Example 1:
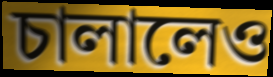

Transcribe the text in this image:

চালালেও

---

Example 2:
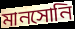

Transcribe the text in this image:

মানসোনি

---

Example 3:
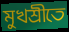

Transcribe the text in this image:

মুখশ্রীতে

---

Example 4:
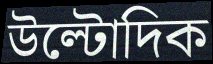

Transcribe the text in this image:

উল্টোদিক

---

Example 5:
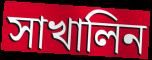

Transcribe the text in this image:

সাখালিন